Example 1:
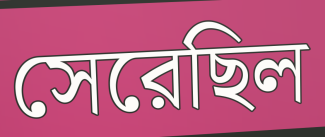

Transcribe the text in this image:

সেরেছিল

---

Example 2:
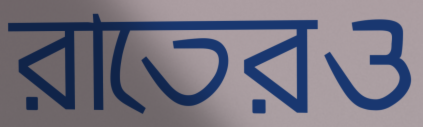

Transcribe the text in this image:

রাতেরও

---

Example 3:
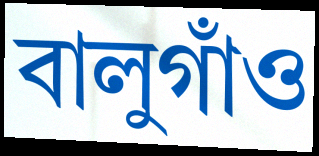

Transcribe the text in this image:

বালুগাঁও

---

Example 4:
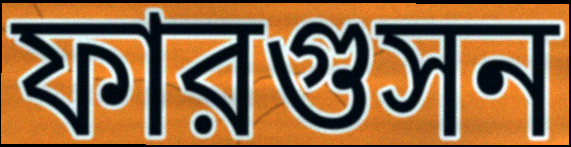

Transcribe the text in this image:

ফারগুসন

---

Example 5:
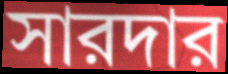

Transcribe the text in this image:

সারদার